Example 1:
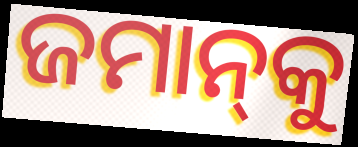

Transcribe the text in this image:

ଜମାନ୍‍କୁ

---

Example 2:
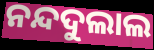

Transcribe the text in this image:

ନନ୍ଦଦୁଲାଲ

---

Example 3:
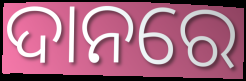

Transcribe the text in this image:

ଦାନରେ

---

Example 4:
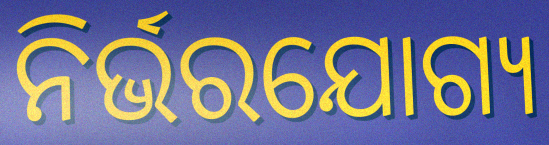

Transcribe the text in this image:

ନିର୍ଭରଯୋଗ୍ୟ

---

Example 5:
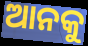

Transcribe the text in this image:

ଆନକୁ